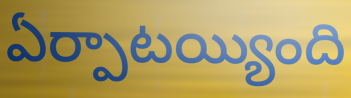
ఏర్పాటయ్యింది